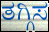
ತಗ್ಗಿಸ